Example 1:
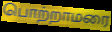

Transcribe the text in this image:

பொற்றாமரை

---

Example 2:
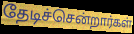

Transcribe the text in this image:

தேடிச்சென்றார்கள்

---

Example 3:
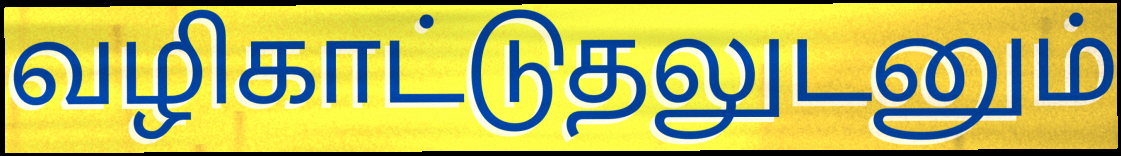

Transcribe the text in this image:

வழிகாட்டுதலுடனும்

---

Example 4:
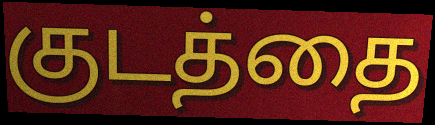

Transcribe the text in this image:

குடத்தை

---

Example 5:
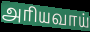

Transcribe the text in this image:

அரியவாய்